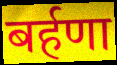
बर्हणा